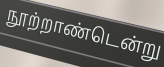
நூற்றாண்டென்று